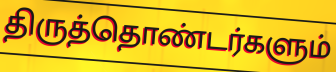
திருத்தொண்டர்களும்